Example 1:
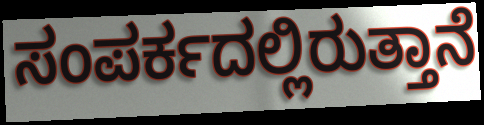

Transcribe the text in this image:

ಸಂಪರ್ಕದಲ್ಲಿರುತ್ತಾನೆ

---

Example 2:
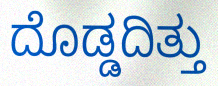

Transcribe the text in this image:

ದೊಡ್ಡದಿತ್ತು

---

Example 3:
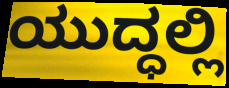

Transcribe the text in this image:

ಯುದ್ಧಲ್ಲಿ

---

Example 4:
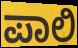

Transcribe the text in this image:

ಪಾಲಿ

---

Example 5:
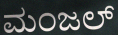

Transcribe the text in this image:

ಮಂಜಲ್